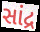
સાંદ્ર